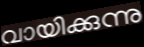
വായിക്കുന്നു